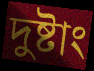
দুষ্টাং